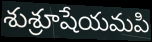
శుశ్రూషేయమపి